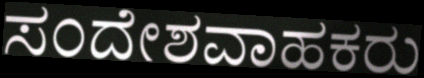
ಸಂದೇಶವಾಹಕರು